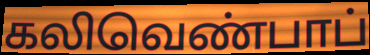
கலிவெண்பாப்